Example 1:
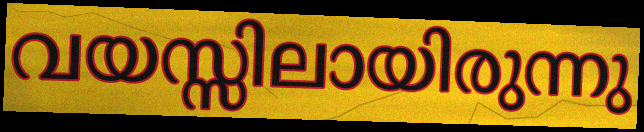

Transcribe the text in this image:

വയസ്സിലായിരുന്നു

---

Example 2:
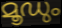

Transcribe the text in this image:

മൂഡും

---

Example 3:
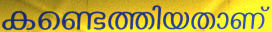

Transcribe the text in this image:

കണ്ടെത്തിയതാണ്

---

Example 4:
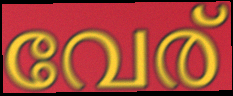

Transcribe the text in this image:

വേര്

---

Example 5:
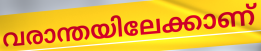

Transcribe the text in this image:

വരാന്തയിലേക്കാണ്